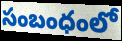
సంబంధంలో